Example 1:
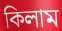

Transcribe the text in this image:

কিলাম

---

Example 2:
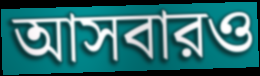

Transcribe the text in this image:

আসবারও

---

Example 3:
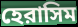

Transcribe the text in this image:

হেরাসিম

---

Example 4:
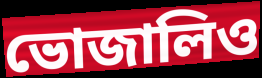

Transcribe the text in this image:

ভোজালিও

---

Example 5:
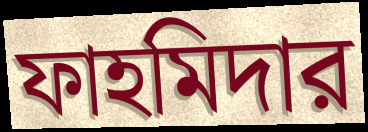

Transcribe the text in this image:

ফাহমিদার